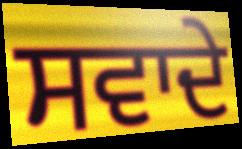
ਸਵਾਦੇ